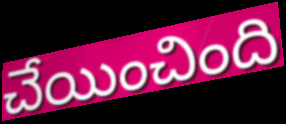
చేయించింది